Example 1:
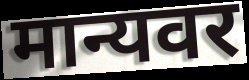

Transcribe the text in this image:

मान्यवर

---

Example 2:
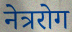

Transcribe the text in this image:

नेत्ररोग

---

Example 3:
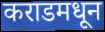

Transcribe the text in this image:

कराडमधून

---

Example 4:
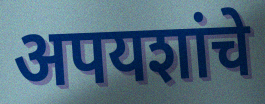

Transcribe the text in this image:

अपयशांचे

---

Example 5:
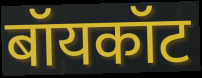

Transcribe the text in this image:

बॉयकॉट